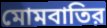
মোমবাতির